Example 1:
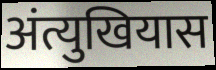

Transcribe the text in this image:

अंत्युखियास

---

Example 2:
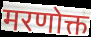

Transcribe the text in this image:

मरणोक्त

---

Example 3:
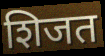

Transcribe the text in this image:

शिजत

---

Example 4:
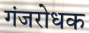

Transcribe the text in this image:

गंजरोधक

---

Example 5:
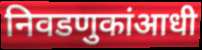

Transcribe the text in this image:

निवडणुकांआधी